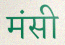
मंसी